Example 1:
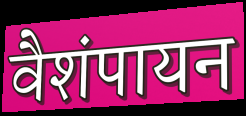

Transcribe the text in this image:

वैशंपायन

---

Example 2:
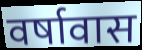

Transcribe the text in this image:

वर्षावास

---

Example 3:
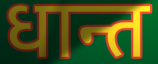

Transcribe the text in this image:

धान्त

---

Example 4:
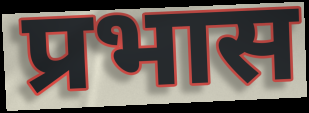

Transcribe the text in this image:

प्रभास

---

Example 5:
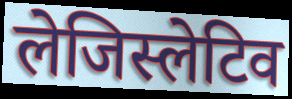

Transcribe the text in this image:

लेजिस्लेटिव